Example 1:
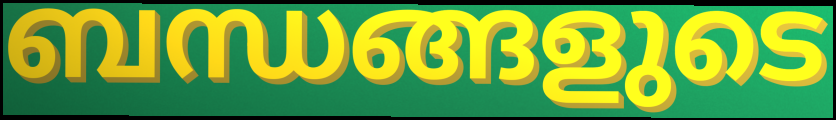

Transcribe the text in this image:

ബന്ധങ്ങളുടെ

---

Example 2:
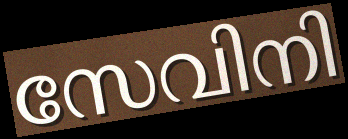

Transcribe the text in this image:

സേവിനി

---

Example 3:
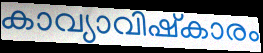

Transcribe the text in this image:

കാവ്യാവിഷ്കാരം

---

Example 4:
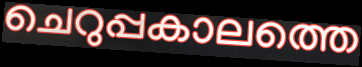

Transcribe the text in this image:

ചെറുപ്പകാലത്തെ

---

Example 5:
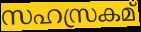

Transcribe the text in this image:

സഹസ്രകമ്